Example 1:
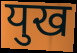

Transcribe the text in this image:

युख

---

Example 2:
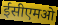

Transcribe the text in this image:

ईसीएमओ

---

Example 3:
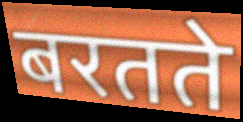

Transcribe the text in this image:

बरतते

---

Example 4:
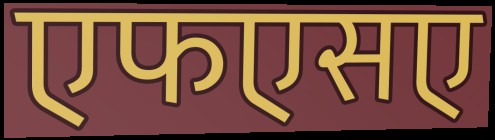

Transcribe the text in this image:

एफएसए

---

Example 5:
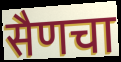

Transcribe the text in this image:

सैणचा